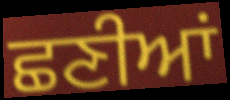
ਛਣੀਆਂ